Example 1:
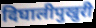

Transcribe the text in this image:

दिघालीपुखुरी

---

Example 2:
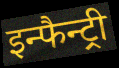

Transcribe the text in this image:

इन्फैन्ट्री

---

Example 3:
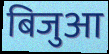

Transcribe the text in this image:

बिजुआ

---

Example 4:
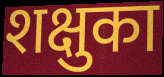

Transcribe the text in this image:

शक्षुका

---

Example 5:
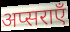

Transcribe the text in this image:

अप्सराएँ